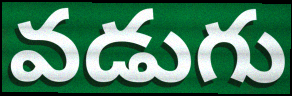
వడుగు